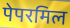
पेपरमिल